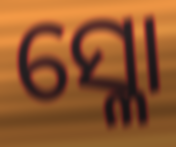
ସ୍ଳୋ